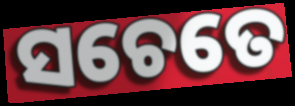
ସଚେତେ